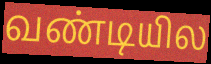
வண்டியில